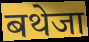
बथेजा